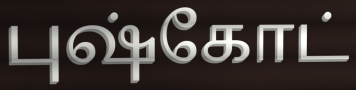
புஷ்கோட்